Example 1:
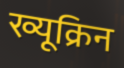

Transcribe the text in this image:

ख्यूक्रिन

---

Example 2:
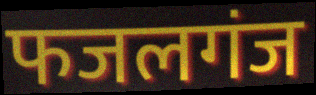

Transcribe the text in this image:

फजलगंज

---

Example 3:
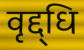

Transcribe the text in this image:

वृद्द्धि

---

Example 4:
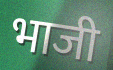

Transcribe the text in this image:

भाजी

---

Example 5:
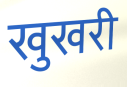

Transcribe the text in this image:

खुखरी